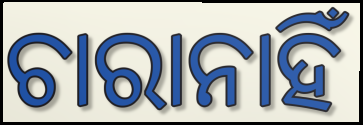
ଚାରାନାହିଁ